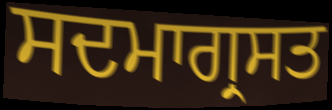
ਸਦਮਾਗ੍ਰਸਤ